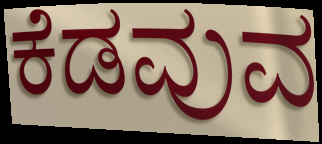
ಕೆಡವುವ